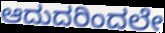
ಆದುದರಿಂದಲೇ